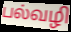
பல்வழி